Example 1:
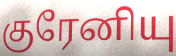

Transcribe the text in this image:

குரேனியு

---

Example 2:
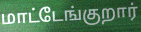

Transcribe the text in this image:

மாட்டேங்குறார்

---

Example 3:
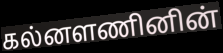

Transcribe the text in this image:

கல்னளணினின்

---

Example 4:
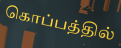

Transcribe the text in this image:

கொப்பத்தில்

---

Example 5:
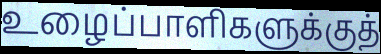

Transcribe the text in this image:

உழைப்பாளிகளுக்குத்